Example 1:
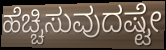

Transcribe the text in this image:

ಹೆಚ್ಚಿಸುವುದಷ್ಟೇ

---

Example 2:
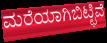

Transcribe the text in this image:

ಮರೆಯಾಗಿಬಿಟ್ಟಿವೆ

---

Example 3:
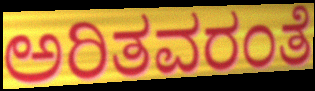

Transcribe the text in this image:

ಅರಿತವರಂತೆ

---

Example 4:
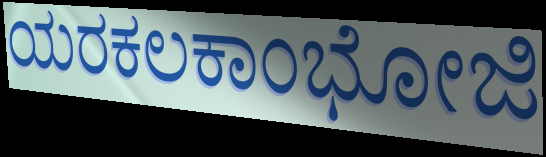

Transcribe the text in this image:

ಯರಕಲಕಾಂಭೋಜಿ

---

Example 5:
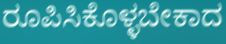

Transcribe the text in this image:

ರೂಪಿಸಿಕೊಳ್ಳಬೇಕಾದ